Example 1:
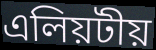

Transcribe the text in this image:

এলিয়টীয়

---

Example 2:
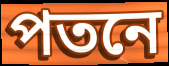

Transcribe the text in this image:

পতনে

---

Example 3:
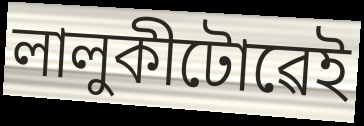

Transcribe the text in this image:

লালুকীটোৱেই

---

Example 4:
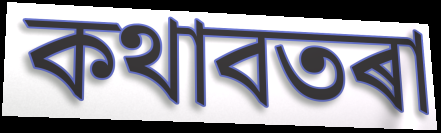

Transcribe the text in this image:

কথাবতৰা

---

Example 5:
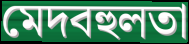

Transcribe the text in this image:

মেদবহুলতা